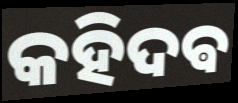
କହିଦଵ